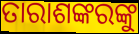
ତାରାଶଙ୍କରଙ୍କୁ